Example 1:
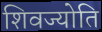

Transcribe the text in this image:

शिवज्योति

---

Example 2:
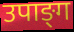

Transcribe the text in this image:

उपाङ्ग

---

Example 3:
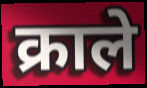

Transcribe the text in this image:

क्राले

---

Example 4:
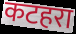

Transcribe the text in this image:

कटहरा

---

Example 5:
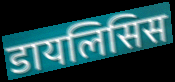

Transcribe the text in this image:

डायलिसिस